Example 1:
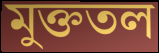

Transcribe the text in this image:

মুক্ততল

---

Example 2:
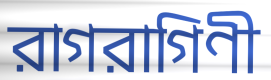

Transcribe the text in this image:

রাগরাগিণী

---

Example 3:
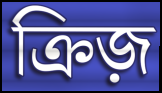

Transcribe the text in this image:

ক্রিজ়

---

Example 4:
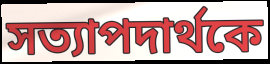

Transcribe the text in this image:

সত্যাপদার্থকে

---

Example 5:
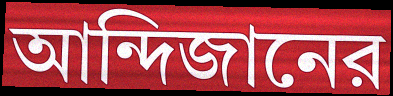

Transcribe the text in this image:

আন্দিজানের